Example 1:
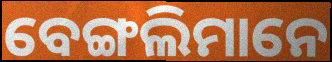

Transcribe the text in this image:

ବେଙ୍ଗଲିମାନେ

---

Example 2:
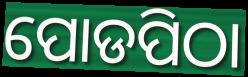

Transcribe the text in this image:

ପୋଡପିଠା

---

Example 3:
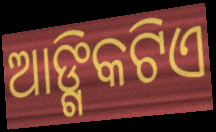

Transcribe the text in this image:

ଆଙ୍ଗିକଟିଏ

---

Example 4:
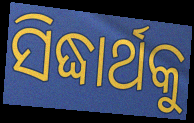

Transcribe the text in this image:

ସିଦ୍ଧାର୍ଥକୁ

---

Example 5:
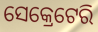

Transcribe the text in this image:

ସେକ୍ରେଟେରି